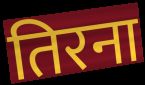
तिरना